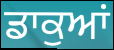
ਡਾਕੁਆਂ